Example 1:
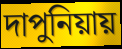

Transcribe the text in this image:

দাপুনিয়ায়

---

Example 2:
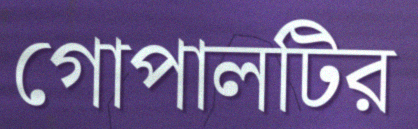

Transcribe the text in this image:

গোপালটির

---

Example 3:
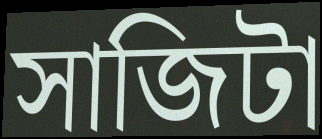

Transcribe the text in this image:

সাজিটা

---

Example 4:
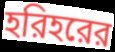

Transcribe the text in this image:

হরিহরের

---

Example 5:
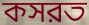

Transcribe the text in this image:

কসরত